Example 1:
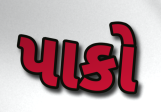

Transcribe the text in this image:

પાકો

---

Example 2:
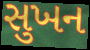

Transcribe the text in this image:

સુખન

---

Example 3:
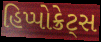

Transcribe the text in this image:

હિપ્પોક્રેટ્સ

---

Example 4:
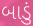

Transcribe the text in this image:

બાડું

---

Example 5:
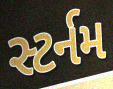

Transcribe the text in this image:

સ્ટર્નમ